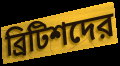
ব্রিটিশদের